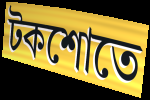
টকশোতে